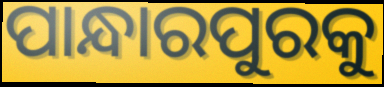
ପାନ୍ଧାରପୁରକୁ